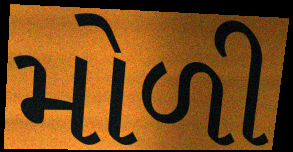
મોળી